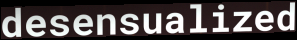
desensualized